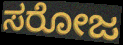
ಸರೋಜ